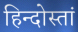
हिन्दोस्तां